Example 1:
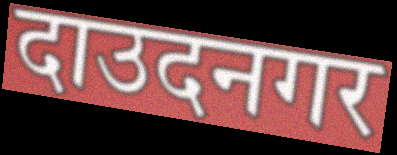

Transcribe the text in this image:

दाउदनगर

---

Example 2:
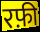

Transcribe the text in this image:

रफ़ी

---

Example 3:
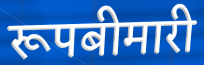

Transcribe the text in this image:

रूपबीमारी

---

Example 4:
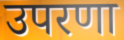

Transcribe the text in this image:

उपरणा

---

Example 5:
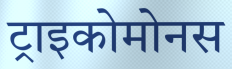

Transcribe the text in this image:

ट्राइकोमोनस